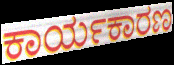
ಕಾರ್ಯಕಾರಣ